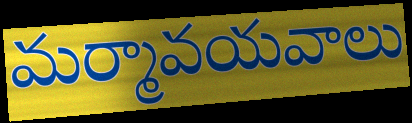
మర్మావయవాలు